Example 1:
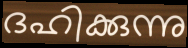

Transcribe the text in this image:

ദഹിക്കുന്നു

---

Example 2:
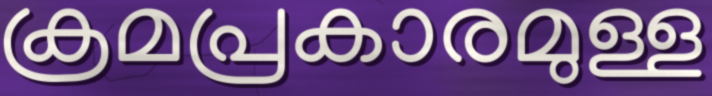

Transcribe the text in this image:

ക്രമപ്രകാരമുള്ള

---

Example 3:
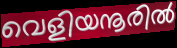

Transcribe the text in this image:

വെളിയനൂരിൽ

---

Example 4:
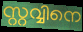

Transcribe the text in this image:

സ്റ്റവ്വിനെ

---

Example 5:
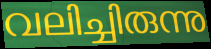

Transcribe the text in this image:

വലിച്ചിരുന്നു